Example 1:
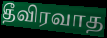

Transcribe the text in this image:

தீவிரவாத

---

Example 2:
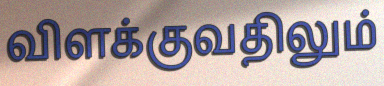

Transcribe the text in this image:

விளக்குவதிலும்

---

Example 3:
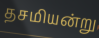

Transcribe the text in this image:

தசமியன்று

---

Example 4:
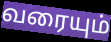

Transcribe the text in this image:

வரையும்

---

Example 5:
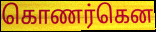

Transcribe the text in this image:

கொணர்கென